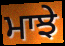
ਮਾਝੇ